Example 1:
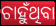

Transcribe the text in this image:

ଚାହୁଁଥିବା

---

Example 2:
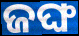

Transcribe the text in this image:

ଜଙ୍ଘ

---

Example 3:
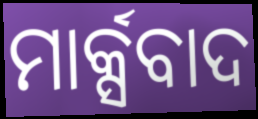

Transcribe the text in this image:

ମାର୍କ୍ସବାଦ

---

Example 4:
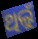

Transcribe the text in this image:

ଥିଲୁଁ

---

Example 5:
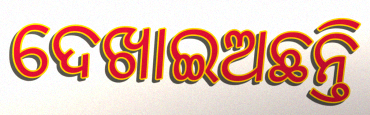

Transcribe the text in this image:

ଦେଖାଇଅଛନ୍ତି